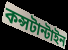
কন্সটান্টাইন